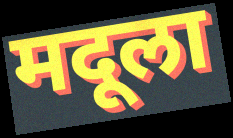
मदूला